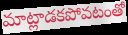
మాట్లాడకపోవటంతో